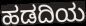
ಹಡದಿಯ